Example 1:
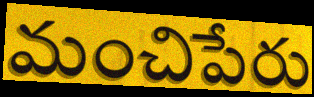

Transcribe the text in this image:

మంచిపేరు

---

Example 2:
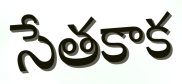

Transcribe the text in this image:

సేతకాక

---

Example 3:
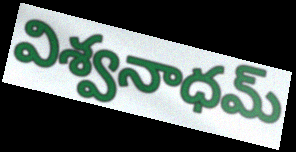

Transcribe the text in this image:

విశ్వనాధమ్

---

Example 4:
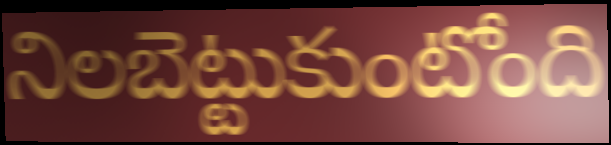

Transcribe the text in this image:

నిలబెట్టుకుంటోంది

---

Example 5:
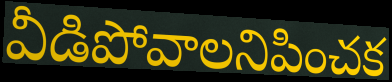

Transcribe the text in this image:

వీడిపోవాలనిపించక